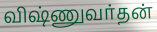
விஷ்ணுவர்தன்